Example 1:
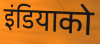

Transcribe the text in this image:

इंडियाको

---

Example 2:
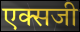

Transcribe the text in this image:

एक्सजी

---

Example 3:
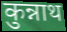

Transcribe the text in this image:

कुन्नाथ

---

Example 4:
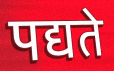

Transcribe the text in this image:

पद्यते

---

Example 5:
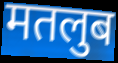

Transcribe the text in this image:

मतलुब